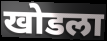
खोडला